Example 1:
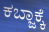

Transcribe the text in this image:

ಕಬ್ಜಾಕ್ಕೆ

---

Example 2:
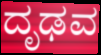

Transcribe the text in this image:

ದೃಢವ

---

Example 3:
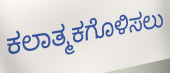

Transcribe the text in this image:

ಕಲಾತ್ಮಕಗೊಳಿಸಲು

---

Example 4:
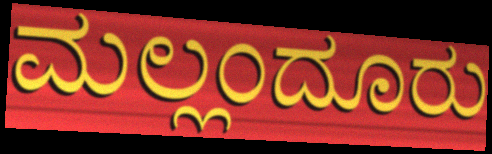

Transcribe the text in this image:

ಮಲ್ಲಂದೂರು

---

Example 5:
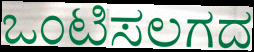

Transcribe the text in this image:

ಒಂಟಿಸಲಗದ